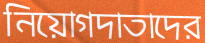
নিয়োগদাতাদের